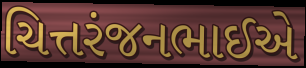
ચિત્તરંજનભાઈએ